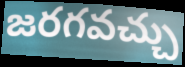
జరగవచ్చు